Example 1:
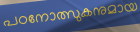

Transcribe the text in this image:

പഠനോത്സുകനുമായ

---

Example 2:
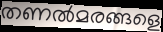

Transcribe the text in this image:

തണൽമരങ്ങളെ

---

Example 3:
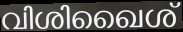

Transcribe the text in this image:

വിശിഖൈശ്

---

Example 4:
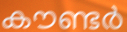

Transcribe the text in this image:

കൗണ്ടർ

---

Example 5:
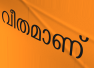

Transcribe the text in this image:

വീതമാണ്